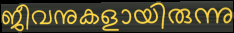
ജീവനുകളായിരുന്നു